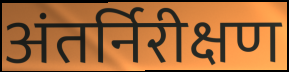
अंतर्निरीक्षण